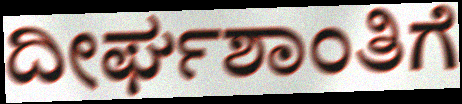
ದೀರ್ಘಶಾಂತಿಗೆ